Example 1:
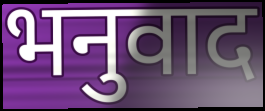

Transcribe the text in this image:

भनुवाद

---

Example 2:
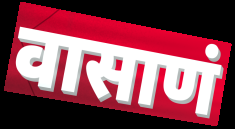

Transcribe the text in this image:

वासाणं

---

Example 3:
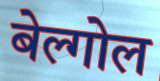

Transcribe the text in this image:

बेल्गोल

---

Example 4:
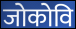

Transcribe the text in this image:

जोकोवि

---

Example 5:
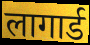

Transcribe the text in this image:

लागार्ड